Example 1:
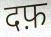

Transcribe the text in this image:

दफ़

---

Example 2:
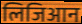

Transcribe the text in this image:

लिजिआन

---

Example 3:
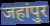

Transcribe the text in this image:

जहांपुर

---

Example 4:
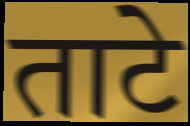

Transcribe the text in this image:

ताटे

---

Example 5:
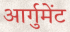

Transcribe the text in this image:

आर्गुमेंट